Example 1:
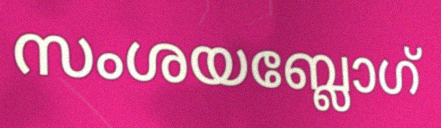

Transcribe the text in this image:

സംശയബ്ലോഗ്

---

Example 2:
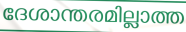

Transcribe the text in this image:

ദേശാന്തരമില്ലാത്ത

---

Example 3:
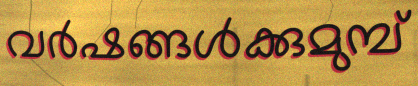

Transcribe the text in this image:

വർഷങ്ങൾക്കുമുമ്പ്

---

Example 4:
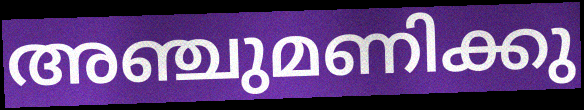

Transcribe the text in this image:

അഞ്ചുമണിക്കു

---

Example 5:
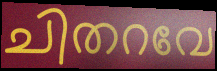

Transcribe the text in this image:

ചിതറവേ